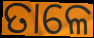
ତାଳେ